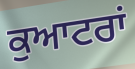
ਕੁਆਟਰਾਂ